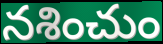
నశించుం